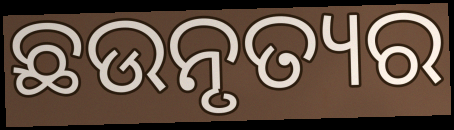
ଛଉନୃତ୍ୟର